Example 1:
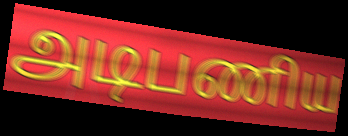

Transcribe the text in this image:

அடிபணிய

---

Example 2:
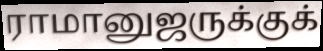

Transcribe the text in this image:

ராமானுஜருக்குக்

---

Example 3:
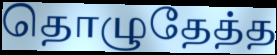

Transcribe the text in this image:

தொழுதேத்த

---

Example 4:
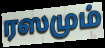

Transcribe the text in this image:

ரஸமும்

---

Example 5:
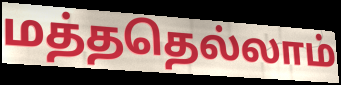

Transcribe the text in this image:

மத்ததெல்லாம்